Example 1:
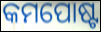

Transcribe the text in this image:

କମପୋଷ୍ଟ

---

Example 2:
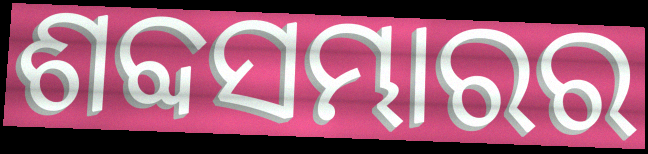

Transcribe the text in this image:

ଶବ୍ଦସମ୍ଭାରର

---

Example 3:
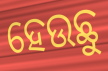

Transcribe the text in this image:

ହେଉଛୁ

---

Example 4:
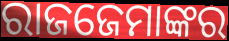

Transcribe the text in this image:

ରାଜଜେମାଙ୍କର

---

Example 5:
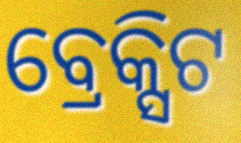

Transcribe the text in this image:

ବ୍ରେକ୍ସିଟ